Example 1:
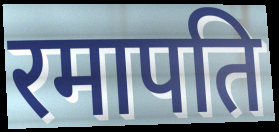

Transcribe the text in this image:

रमापति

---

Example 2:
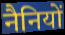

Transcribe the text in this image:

नैनियों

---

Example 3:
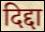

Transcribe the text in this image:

दिद्दा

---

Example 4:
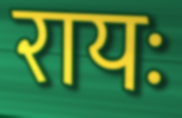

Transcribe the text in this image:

रायः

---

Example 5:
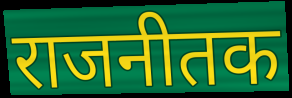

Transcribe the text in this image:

राजनीतक